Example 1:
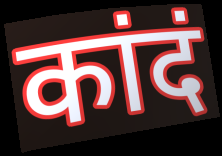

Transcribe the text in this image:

कांदं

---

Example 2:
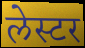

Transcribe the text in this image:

लेस्टर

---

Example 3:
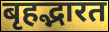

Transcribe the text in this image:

बृहद्भारत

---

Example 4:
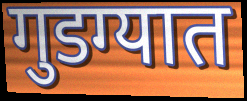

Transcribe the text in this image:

गुडग्यात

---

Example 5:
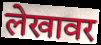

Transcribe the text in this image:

लेखावर